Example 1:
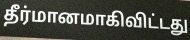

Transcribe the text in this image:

தீர்மானமாகிவிட்டது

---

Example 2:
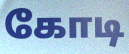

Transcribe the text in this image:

கோடி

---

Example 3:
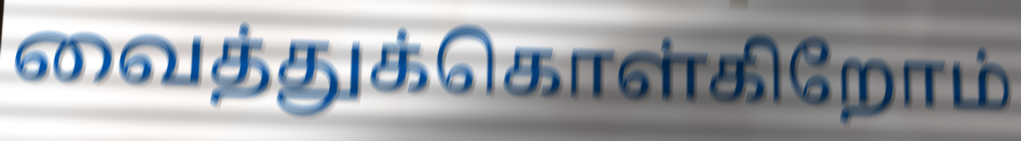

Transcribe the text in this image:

வைத்துக்கொள்கிறோம்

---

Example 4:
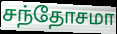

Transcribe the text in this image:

சந்தோசமா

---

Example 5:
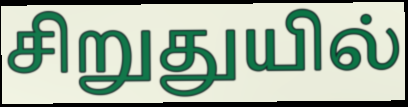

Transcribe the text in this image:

சிறுதுயில்